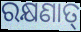
ରକ୍ଷଣାତ୍